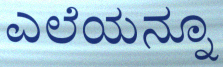
ಎಲೆಯನ್ನೂ